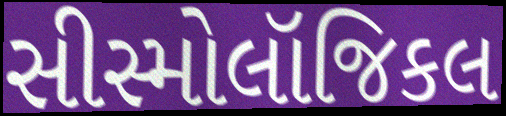
સીસ્મોલૉજિકલ